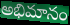
అభిమానం